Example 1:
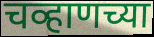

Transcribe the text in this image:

चव्हाणच्या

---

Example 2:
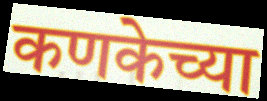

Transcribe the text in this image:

कणकेच्या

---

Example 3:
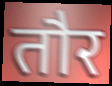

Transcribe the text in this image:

तौर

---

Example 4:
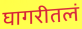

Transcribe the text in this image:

घागरीतलं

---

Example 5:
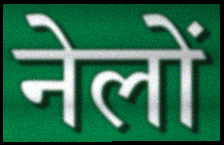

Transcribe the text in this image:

नेलों